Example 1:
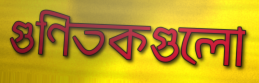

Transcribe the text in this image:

গুণিতকগুলো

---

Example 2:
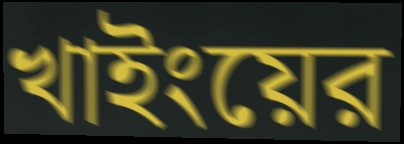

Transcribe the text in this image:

খাইংয়ের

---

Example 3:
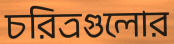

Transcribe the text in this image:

চরিত্রগুলোর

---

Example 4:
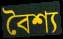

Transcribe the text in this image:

বৈশ্য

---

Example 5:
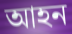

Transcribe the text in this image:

আহন